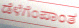
ಡೆಳೆಗೆಂಪಾಂತ